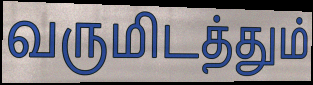
வருமிடத்தும்